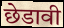
छेडावी